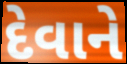
દેવાને